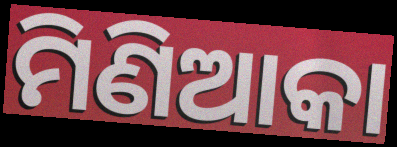
ମିଣିଆକା